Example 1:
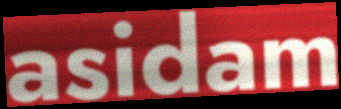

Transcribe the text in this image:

asidam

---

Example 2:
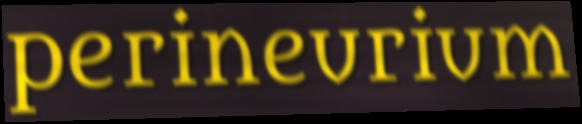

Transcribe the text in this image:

perineurium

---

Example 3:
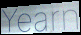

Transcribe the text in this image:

Yearn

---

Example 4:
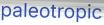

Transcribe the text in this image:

paleotropic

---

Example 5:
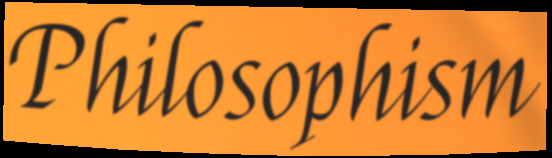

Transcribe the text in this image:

Philosophism